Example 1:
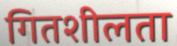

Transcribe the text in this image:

गितशीलता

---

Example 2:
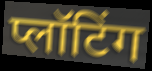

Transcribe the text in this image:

प्लॉटिंग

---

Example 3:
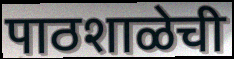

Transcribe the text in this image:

पाठशाळेची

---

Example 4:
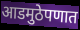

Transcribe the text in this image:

आडमुठेपणात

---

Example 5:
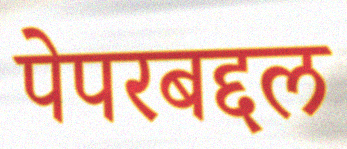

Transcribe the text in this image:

पेपरबद्दल